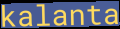
kalanta